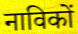
नाविकों